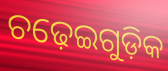
ଚଢ଼େଇଗୁଡ଼ିକ